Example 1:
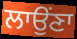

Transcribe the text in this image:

ਲਾਉਂਣਾ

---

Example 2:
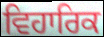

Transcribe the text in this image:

ਵਿਹਾਰਿਕ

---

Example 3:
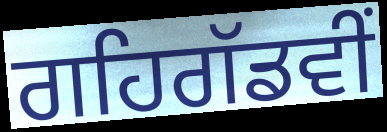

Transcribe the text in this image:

ਗਹਿਗੱਡਵੀਂ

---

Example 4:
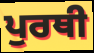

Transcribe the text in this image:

ਪੁਰਥੀ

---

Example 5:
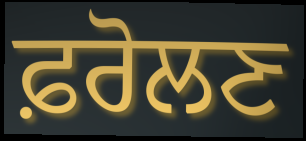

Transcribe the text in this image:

ਫ਼ਰੋਲਣ